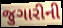
જુગારીની